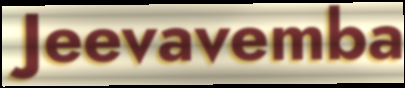
Jeevavemba